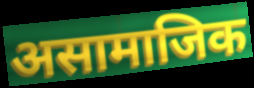
असामाजिक